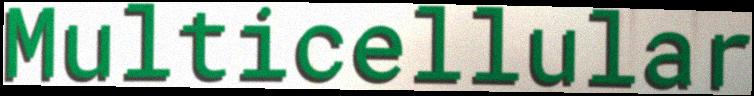
Multicellular